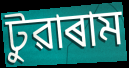
টুৱাৰাম